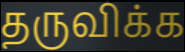
தருவிக்க